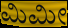
ಮಿಮೀ